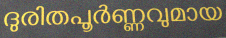
ദുരിതപൂർണ്ണവുമായ